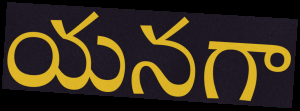
యనగా